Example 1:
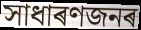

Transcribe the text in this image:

সাধাৰণজনৰ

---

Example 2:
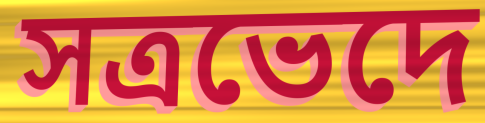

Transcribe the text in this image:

সত্ৰভেদে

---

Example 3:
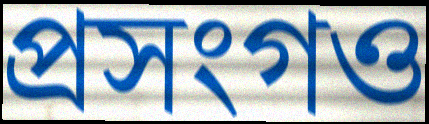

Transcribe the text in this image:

প্ৰসংগও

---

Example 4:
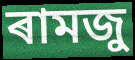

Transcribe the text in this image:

ৰামজু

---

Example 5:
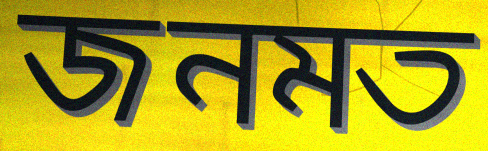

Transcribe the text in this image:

জনমত